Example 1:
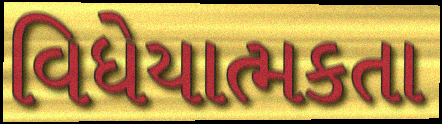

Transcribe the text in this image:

વિધેયાત્મકતા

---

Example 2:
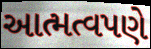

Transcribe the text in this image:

આત્મત્વપણે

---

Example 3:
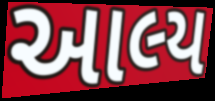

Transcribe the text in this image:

આલ્ય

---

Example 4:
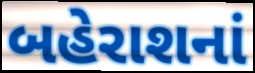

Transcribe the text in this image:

બહેરાશનાં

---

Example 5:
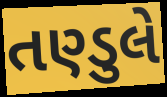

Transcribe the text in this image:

તણ્ડુલે